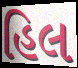
હિલ